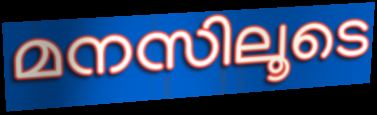
മനസിലൂടെ